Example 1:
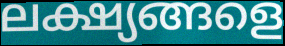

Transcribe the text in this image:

ലക്ഷ്യങ്ങളെ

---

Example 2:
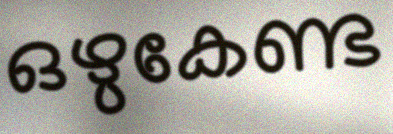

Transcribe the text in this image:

ഒഴുകേണ്ട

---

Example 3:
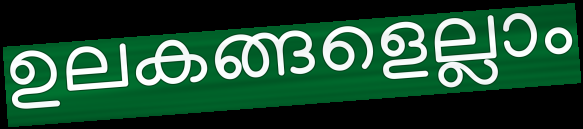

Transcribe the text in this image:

ഉലകങ്ങളെല്ലാം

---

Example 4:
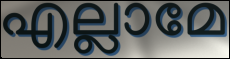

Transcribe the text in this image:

എല്ലാമേ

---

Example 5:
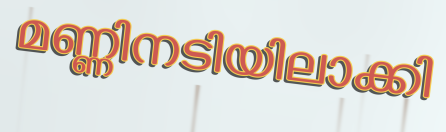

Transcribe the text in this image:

മണ്ണിനടിയിലാക്കി